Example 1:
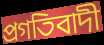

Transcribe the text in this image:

প্রগতিবাদী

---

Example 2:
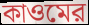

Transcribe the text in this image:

কাওমের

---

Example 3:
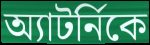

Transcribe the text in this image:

অ্যাটর্নিকে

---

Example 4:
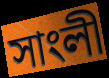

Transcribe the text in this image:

সাংলী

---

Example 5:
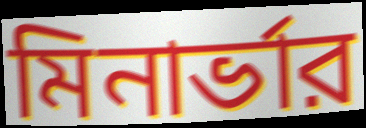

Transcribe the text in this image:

মিনার্ভার